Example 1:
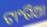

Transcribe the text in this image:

ଟାଂଗିଆ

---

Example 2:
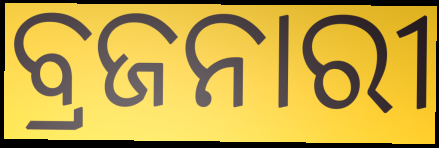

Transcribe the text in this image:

ବ୍ରଜନାରୀ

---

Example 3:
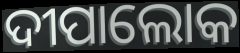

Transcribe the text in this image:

ଦୀପାଲୋକ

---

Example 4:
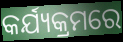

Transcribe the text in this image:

କର୍ଯ୍ୟକ୍ରମରେ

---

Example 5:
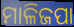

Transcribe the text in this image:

ମାଳିଜପା